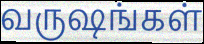
வருஷங்கள்